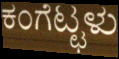
ಕಂಗೆಟ್ಟಳು